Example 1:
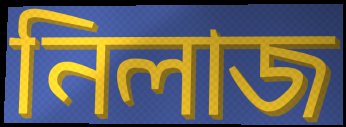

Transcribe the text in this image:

নিলাজ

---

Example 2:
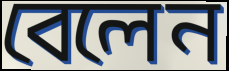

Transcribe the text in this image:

বেলেন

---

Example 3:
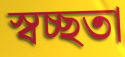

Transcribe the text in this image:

স্বচ্ছতা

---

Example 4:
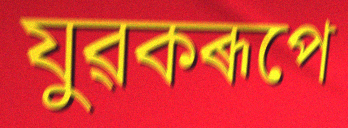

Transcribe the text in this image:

যুৱকৰূপে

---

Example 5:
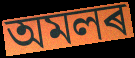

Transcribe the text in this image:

অমলৰ